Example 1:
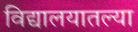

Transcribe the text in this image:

विद्यालयातल्या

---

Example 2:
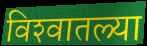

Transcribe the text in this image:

विश्वातल्या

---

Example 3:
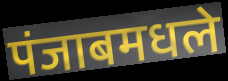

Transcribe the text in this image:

पंजाबमधले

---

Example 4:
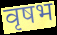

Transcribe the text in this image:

वृषभ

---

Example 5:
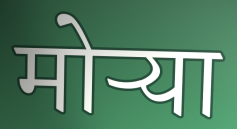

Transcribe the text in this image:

मोऱ्या